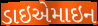
ડાઇએમાઇન